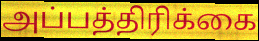
அப்பத்திரிக்கை